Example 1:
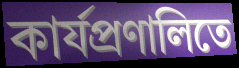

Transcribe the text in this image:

কার্যপ্রণালিতে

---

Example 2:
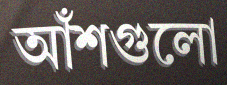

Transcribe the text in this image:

আঁশগুলো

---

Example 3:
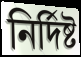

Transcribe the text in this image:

নির্দিষ্ট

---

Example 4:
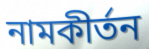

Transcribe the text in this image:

নামকীর্তন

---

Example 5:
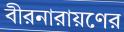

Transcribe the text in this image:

বীরনারায়ণের